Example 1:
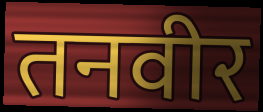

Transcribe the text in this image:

तनवीर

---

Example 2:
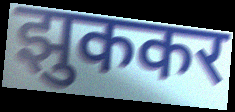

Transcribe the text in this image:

झुककर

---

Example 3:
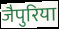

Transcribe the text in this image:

जैपुरिया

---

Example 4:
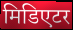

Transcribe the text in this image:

मिडिएटर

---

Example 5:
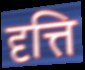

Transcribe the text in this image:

दृत्ति